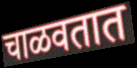
चाळवतात